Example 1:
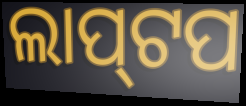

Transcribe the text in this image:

ଲାପ୍‌ଟପ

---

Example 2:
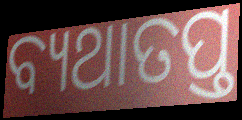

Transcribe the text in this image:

ବ୍ୟଥାତପ୍ତ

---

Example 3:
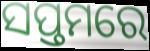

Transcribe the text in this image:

ସପ୍ତମରେ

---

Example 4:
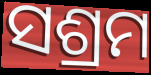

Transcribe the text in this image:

ସଶ୍ରମ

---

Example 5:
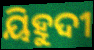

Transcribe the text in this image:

ୟିହୁଦୀ